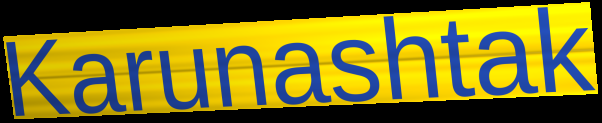
Karunashtak